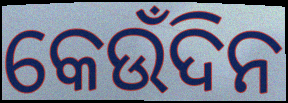
କେଉଁଦିନ